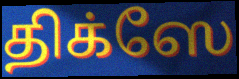
திக்ஸே